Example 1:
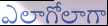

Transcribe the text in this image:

ఎలాగోలాగా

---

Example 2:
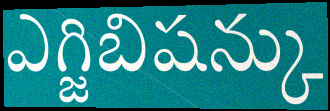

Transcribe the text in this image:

ఎగ్జిబిషన్కు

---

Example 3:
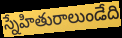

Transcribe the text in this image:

స్నేహితురాలుండేది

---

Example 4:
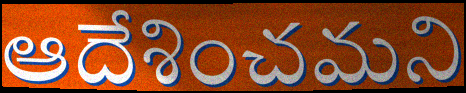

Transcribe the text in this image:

ఆదేశించమని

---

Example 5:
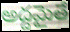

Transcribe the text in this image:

అద్దమైతే